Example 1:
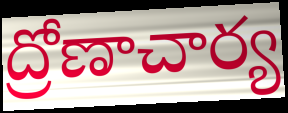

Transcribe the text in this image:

ద్రోణాచార్య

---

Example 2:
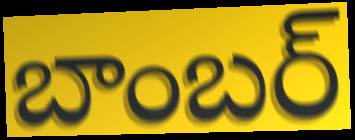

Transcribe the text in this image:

బాంబర్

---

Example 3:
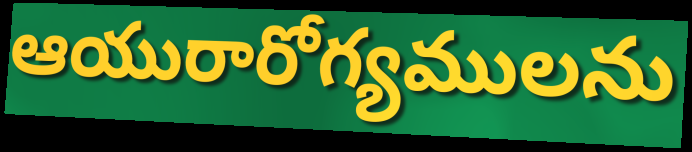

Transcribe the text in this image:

ఆయురారోగ్యములను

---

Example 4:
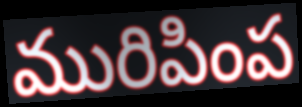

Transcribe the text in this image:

మురిపింప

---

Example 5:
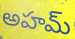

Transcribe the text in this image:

అహమ్